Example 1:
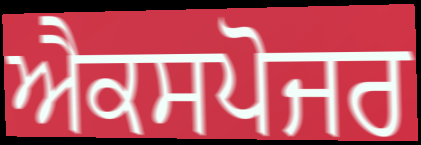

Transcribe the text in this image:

ਐਕਸਪੋਜਰ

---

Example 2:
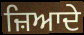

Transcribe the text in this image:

ਜ਼ਿਆਦੇ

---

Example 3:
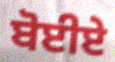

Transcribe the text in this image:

ਬੋਈਏ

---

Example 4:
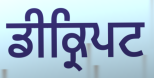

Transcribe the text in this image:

ਡੀਕ੍ਰਿਪਟ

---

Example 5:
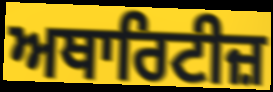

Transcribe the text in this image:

ਅਥਾਰਿਟੀਜ਼